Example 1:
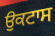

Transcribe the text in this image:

ਉਕਟਾਸ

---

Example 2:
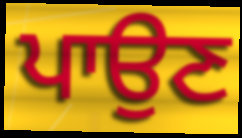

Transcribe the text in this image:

ਪਾਉਣ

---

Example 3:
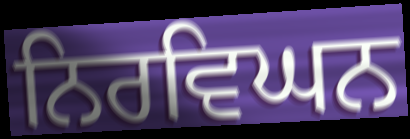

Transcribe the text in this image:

ਨਿਰਵਿਘਨ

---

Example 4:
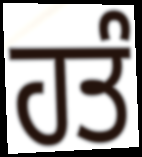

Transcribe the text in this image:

ਹਤੰ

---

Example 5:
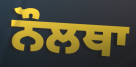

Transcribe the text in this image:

ਨੌਲਥਾ